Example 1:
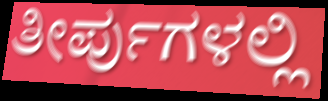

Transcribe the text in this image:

ತೀರ್ಪುಗಳಲ್ಲಿ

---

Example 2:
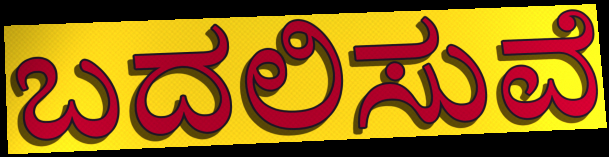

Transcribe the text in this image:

ಬದಲಿಸುವೆ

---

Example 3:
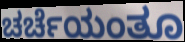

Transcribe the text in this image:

ಚರ್ಚೆಯಂತೂ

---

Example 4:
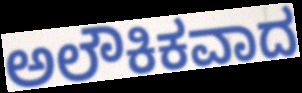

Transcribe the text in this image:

ಅಲೌಕಿಕವಾದ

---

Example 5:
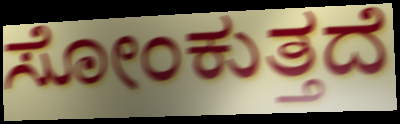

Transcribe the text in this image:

ಸೋಂಕುತ್ತದೆ